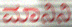
ಮಾನಿನಿ